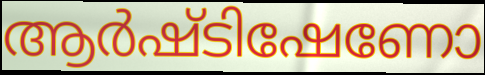
ആർഷ്ടിഷേണോ